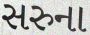
સરુના